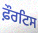
ਫ਼ੌਰਟਿਸ